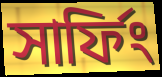
সার্ফিং